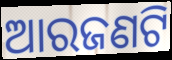
ଆରଜଣଟି